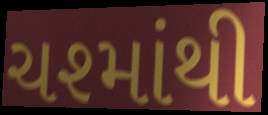
ચશ્માંથી